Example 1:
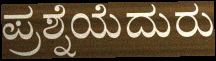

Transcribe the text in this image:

ಪ್ರಶ್ನೆಯೆದುರು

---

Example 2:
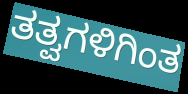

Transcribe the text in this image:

ತತ್ವಗಳಿಗಿಂತ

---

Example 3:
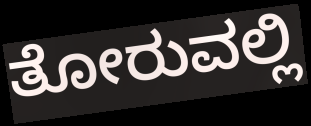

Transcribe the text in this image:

ತೋರುವಲ್ಲಿ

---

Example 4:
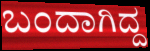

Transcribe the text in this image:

ಬಂದಾಗಿದ್ದ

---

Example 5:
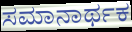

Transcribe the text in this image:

ಸಮಾನಾರ್ಥಕ